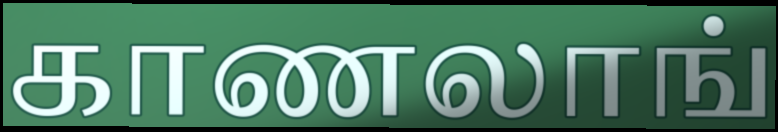
காணலாங்